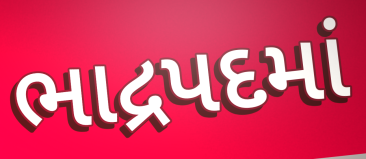
ભાદ્રપદમાં